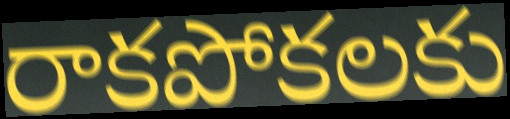
రాకపోకలకు